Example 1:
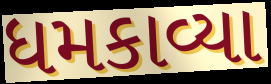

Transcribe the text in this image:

ધમકાવ્યા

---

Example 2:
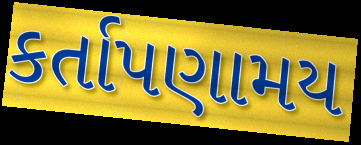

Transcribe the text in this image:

કર્તાપણામય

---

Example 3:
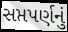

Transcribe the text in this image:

સપ્તપર્ણનું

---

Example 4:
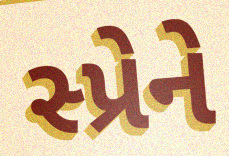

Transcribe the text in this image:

સ્પ્રેને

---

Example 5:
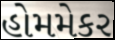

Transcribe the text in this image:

હોમમેકર